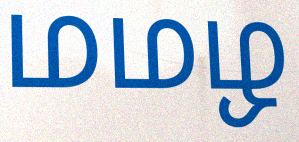
மமழ